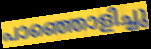
പാഞ്ഞൊളിച്ചു